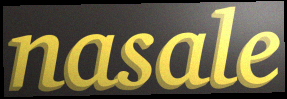
nasale